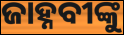
ଜାହ୍ନବୀଙ୍କୁ